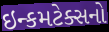
ઇન્કમટેક્સનો